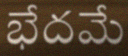
భేదమే